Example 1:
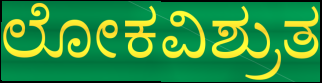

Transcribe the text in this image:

ಲೋಕವಿಶ್ರುತ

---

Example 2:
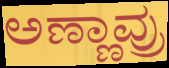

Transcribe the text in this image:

ಅಣ್ಣಾವ್ರು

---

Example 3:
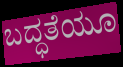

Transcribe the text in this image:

ಬದ್ಧತೆಯೂ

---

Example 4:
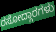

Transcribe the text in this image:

ರಸೋದ್ಗಾರಗಳು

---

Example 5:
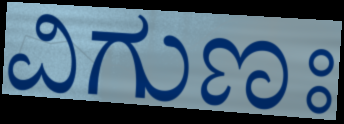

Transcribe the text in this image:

ವಿಗುಣಃ